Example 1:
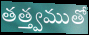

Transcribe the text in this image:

తత్త్వముతో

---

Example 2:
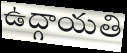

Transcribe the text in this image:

ఉద్గాయతి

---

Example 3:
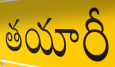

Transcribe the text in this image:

తయారీ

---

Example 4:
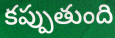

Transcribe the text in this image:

కప్పుతుంది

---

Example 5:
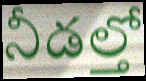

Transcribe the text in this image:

నీడల్తో